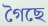
গৈছে